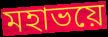
মহাভয়ে